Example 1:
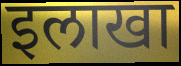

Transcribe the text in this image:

इलाखा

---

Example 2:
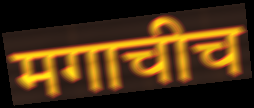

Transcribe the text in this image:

मगाचीच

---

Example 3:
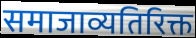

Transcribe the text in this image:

समाजाव्यतिरिक्त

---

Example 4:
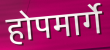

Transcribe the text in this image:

होपमार्गे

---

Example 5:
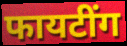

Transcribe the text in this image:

फायटींग